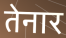
तेनार